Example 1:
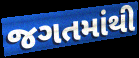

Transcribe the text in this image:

જગતમાંથી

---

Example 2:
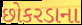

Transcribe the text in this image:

છોકરડાના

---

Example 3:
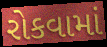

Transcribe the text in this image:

રોકવામાં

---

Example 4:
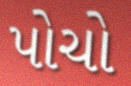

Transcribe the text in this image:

પોચો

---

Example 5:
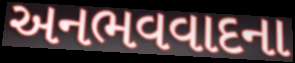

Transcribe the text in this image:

અનભવવાદના